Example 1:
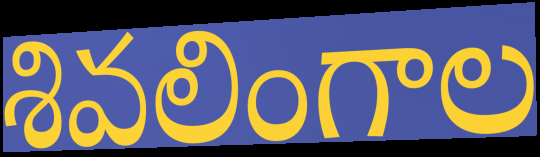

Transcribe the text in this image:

శివలింగాల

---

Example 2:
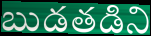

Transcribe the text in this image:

బుడతడిని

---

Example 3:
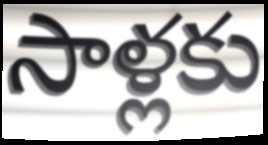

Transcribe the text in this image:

సాళ్లకు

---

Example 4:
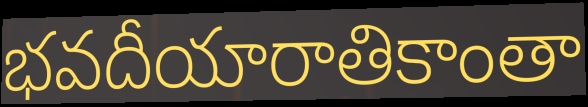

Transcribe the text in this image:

భవదీయారాతికాంతా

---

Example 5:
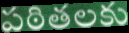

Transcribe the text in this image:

పఠితలకు